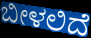
ಬೀಳಲಿದೆ